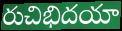
రుచిభిదయా